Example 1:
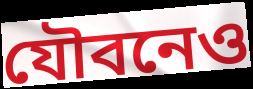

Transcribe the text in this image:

যৌবনেও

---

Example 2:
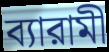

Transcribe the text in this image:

ব্যারামী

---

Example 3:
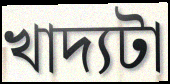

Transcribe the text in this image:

খাদ্যটা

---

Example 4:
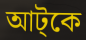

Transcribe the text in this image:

আট্কে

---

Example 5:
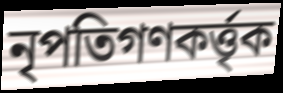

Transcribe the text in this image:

নৃপতিগণকর্ত্তৃক